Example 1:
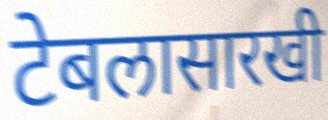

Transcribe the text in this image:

टेबलासारखी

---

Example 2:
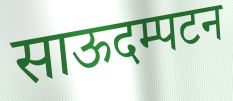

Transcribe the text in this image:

साऊदम्पटन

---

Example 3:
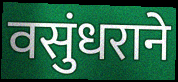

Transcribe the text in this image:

वसुंधराने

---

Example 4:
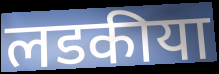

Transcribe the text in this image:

लडकीया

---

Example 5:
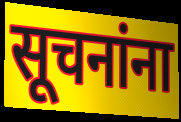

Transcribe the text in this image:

सूचनांना